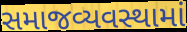
સમાજવ્યવસ્થામાં